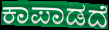
ಕಾಪಾಡದೆ